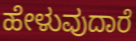
ಹೇಳುವುದಾರೆ